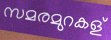
സമരമുറകള്